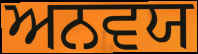
ਅਨਵਯ